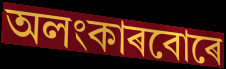
অলংকাৰবোৰে